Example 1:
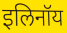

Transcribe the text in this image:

इलिनॉय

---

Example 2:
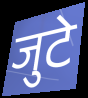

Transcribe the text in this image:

जुटे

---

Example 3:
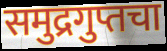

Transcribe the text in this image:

समुद्रगुप्तचा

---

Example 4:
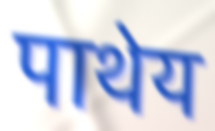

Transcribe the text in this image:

पाथेय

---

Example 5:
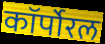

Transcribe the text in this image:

कॉर्पोरल